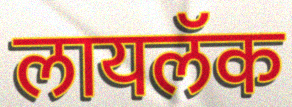
लायलॅक